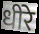
धीरे